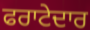
ਫਰਾਟੇਦਾਰ